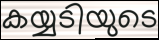
കയ്യടിയുടെ